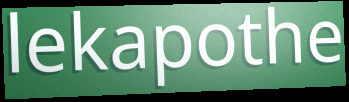
lekapothe